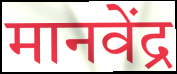
मानवेंद्र